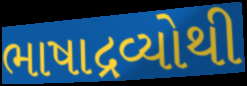
ભાષાદ્રવ્યોથી